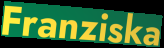
Franziska